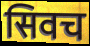
सिवच